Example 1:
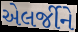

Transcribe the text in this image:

એલર્જીને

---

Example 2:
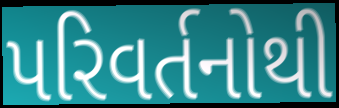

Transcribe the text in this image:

પરિવર્તનોથી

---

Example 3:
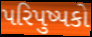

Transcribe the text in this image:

પરિપુષ્પકો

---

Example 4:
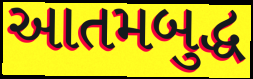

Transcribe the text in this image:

આતમબુદ્ધ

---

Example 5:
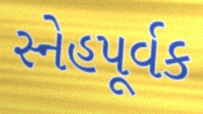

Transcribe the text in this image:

સ્નેહપૂર્વક